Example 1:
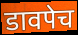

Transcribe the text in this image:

डावपेच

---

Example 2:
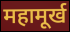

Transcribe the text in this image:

महामूर्ख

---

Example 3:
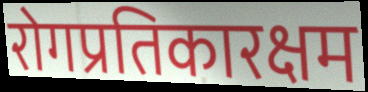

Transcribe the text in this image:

रोगप्रतिकारक्षम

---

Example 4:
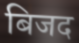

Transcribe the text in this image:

बिजद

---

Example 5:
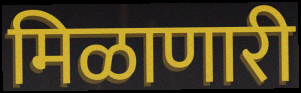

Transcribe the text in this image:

मिळाणारी